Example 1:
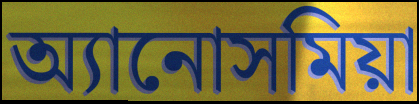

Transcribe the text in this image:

অ্যানোসমিয়া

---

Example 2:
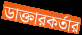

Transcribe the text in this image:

ডাক্তারকর্তার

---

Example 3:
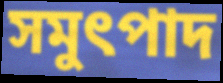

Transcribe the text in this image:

সমুৎপাদ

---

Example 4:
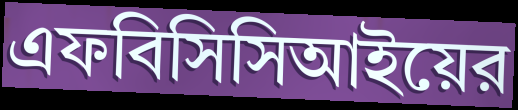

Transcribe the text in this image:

এফবিসিসিআইয়ের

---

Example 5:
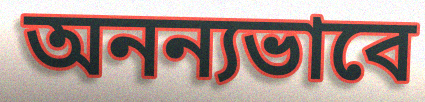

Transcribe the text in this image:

অনন্যভাবে